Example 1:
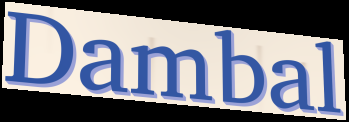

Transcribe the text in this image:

Dambal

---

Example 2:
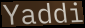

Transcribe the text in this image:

Yaddi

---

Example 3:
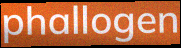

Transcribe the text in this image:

phallogen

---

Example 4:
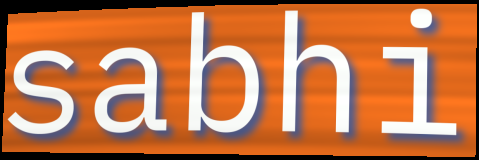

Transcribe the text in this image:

sabhi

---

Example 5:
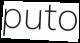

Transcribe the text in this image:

puto